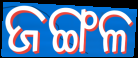
ଜଙ୍ଗଳ